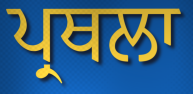
ਪ੍ਰਥਲਾ